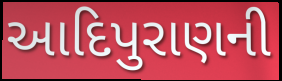
આદિપુરાણની